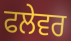
ਫਲੇਵਰ